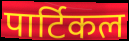
पार्टिकल